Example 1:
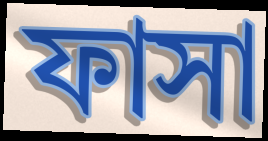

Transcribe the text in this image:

ফাসা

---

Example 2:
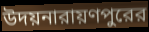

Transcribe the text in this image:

উদয়নারায়ণপুরের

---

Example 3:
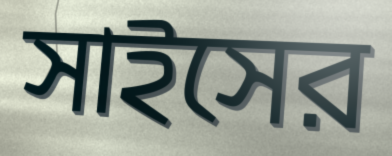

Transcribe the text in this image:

সাইসের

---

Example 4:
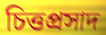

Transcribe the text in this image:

চিত্তপ্রসাদ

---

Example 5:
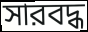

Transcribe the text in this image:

সারবদ্ধ